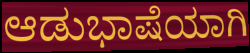
ಆಡುಭಾಷೆಯಾಗಿ